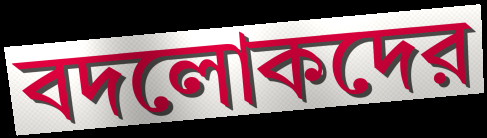
বদলোকদের